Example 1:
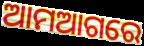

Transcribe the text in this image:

ଆମଆଗରେ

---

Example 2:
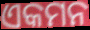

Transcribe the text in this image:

ଏକମନ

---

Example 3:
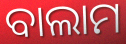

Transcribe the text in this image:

ବାଲାମ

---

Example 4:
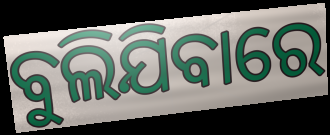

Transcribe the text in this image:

ବୁଲିଯିବାରେ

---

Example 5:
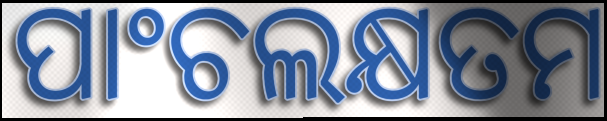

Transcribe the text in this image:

ପାଂଚଲକ୍ଷତମ